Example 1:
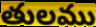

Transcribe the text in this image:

తులము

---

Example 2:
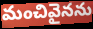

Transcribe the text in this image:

మంచివైనను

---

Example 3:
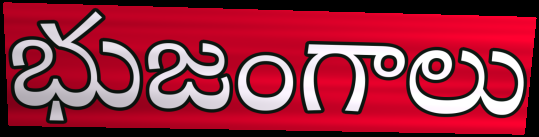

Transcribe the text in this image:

భుజంగాలు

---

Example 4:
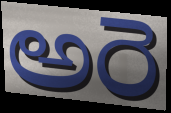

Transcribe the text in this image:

అరె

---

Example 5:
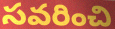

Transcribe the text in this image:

సవరించి